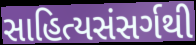
સાહિત્યસંસર્ગથી